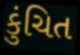
કુંચિત